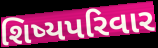
શિષ્યપરિવાર